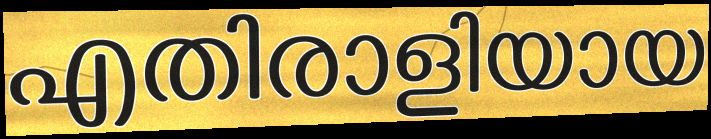
എതിരാളിയായ